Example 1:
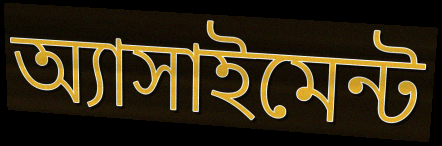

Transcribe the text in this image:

অ্যাসাইমেন্ট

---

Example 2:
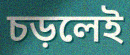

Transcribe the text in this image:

চড়লেই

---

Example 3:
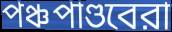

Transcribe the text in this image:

পঞ্চপাণ্ডবেরা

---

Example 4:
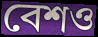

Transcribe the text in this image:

বেশও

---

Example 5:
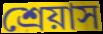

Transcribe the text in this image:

শ্রেয়াস